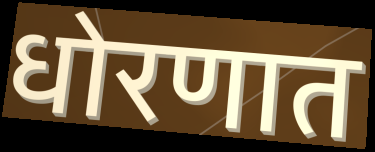
धोरणात